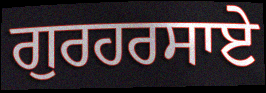
ਗੁਰਹਰਸਾਏ